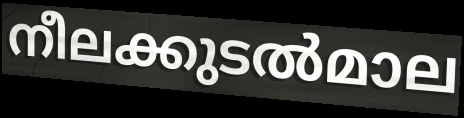
നീലക്കുടൽമാല